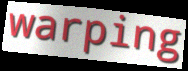
warping